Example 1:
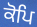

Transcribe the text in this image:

ਕੋਪਿ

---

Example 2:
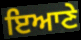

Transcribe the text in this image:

ਇਆਣੇ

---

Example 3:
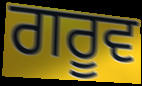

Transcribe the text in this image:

ਗਰੂਵ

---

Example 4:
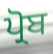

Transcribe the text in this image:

ਪ੍ਰੋਬ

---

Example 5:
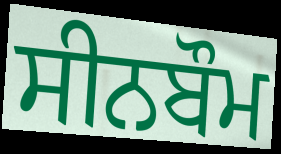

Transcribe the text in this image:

ਸੀਨਬੌਮ